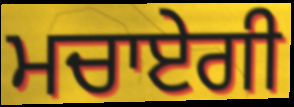
ਮਚਾਏਗੀ